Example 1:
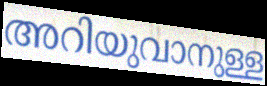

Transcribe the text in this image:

അറിയുവാനുള്ള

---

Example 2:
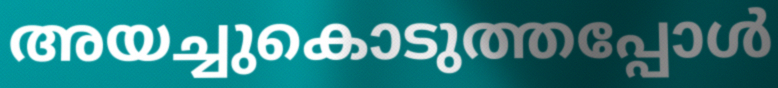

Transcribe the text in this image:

അയച്ചുകൊടുത്തപ്പോൾ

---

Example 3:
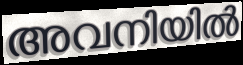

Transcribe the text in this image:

അവനിയിൽ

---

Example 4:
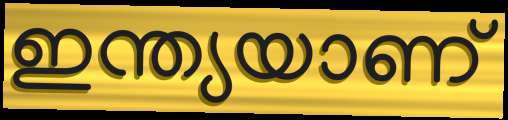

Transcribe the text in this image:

ഇന്ത്യയാണ്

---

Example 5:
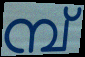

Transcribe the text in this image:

മ്പ്